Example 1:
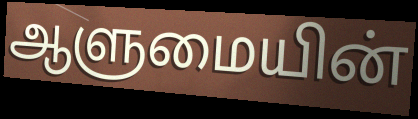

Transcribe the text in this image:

ஆளுமையின்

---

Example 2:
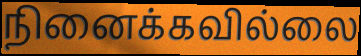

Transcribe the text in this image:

நினைக்கவில்லை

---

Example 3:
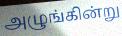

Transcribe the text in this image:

அழுங்கின்று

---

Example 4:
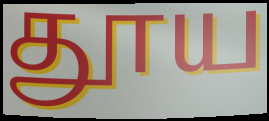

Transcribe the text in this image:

தூய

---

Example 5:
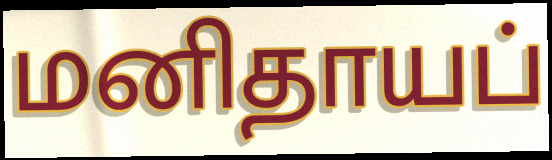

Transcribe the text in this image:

மனிதாயப்